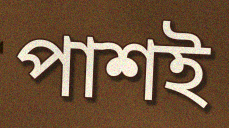
পাশই